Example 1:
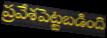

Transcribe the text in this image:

ప్రవేశపెట్టబడింది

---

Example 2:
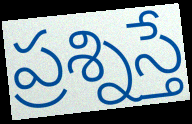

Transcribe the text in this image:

ప్రశ్నిస్తే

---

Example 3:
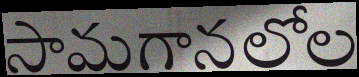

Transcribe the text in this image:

సామగానలోల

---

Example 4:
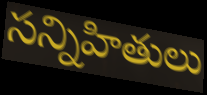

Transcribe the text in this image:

సన్నిహితులు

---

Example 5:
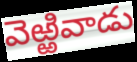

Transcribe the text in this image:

వెఱ్ఱివాడు